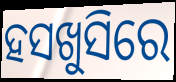
ହସଖୁସିରେ